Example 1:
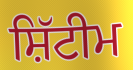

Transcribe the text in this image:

ਸ਼ਿੱਟੀਮ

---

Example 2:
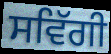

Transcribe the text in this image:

ਸਵਿੱਗੀ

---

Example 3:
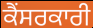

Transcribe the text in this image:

ਕੈਂਸਰਕਾਰੀ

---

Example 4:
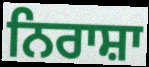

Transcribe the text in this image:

ਨਿਰਾਸ਼ਾ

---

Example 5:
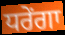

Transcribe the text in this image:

ਧਰੇਂਗਾ